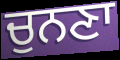
ਚੁਨਣਾ